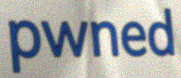
pwned